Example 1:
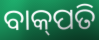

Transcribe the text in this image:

ବାକ୍‌ପତି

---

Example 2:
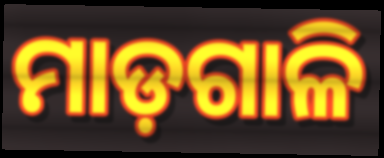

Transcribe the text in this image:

ମାଡ଼ଗାଳି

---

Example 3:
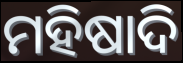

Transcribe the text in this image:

ମହିଷାଦି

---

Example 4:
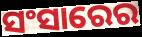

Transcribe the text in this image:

ସଂସାରେର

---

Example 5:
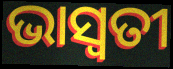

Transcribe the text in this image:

ଭାସ୍ଵତୀ